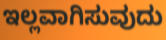
ಇಲ್ಲವಾಗಿಸುವುದು